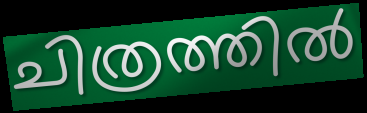
ചിത്രത്തിൽ